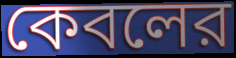
কেবলের